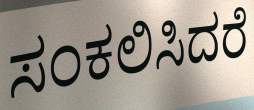
ಸಂಕಲಿಸಿದರೆ